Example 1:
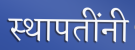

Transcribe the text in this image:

स्थापतींनी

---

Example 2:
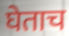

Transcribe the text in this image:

घेताच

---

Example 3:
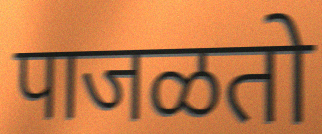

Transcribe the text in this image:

पाजळतो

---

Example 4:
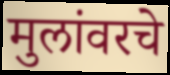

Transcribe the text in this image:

मुलांवरचे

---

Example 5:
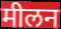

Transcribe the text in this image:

मीलन